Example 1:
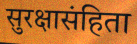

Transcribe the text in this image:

सुरक्षासंहिता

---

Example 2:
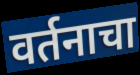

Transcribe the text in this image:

वर्तनाचा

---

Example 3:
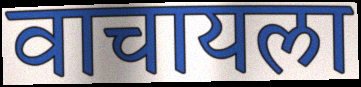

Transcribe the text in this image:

वाचायला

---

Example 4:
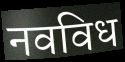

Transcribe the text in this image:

नवविध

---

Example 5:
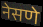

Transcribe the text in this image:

नेसणे